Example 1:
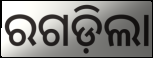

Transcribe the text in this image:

ରଗଡ଼ିଲା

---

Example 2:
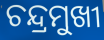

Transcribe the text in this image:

ଚନ୍ଦ୍ରମୁଖୀ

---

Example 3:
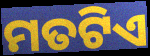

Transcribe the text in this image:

ମତଟିଏ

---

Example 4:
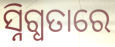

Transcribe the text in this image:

ସ୍ନିଗ୍ଧତାରେ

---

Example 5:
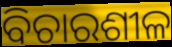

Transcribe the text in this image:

ବିଚାରଶୀଳ